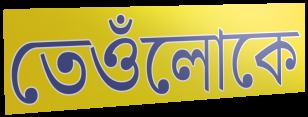
তেওঁলোকে